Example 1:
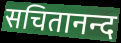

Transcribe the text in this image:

सचितानन्द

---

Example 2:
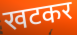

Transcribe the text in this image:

खटकर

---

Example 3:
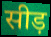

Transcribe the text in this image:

सीड़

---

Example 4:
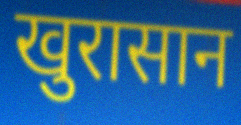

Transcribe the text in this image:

खुरासान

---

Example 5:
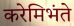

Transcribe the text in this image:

करेमिभंते